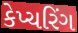
કેપ્ચરિંગ